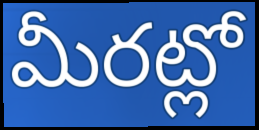
మీరట్లో